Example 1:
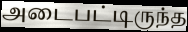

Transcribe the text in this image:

அடைபட்டிருந்த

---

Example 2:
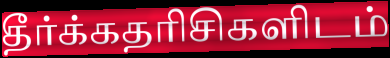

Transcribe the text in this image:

தீர்க்கதரிசிகளிடம்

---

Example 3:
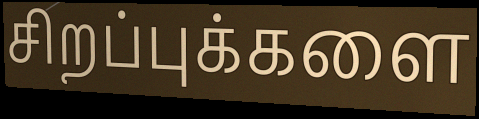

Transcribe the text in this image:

சிறப்புக்களை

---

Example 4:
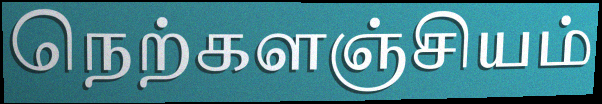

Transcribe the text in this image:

நெற்களஞ்சியம்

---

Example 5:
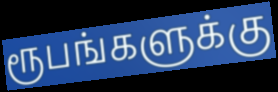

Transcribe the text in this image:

ரூபங்களுக்கு